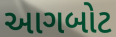
આગબોટ